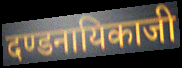
दण्डनायिकाजी